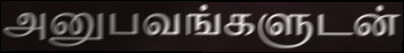
அனுபவங்களுடன்